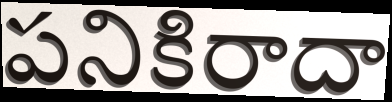
పనికిరాదా